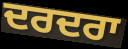
ਦਰਦਰਾ